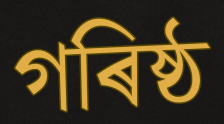
গৰিষ্ঠ